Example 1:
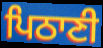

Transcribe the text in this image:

ਪਿਠਾਣੀ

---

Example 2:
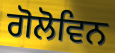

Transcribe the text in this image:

ਗੋਲੋਵਿਨ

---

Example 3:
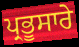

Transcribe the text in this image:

ਪ੍ਰਭੂਸਾਰੇ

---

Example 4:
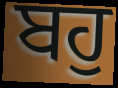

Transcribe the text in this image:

ਬਹੁ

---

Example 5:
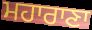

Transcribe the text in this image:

ਮਹਾਰਾਣਾ